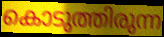
കൊടുത്തിരുന്ന